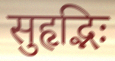
सुहृद्भिः